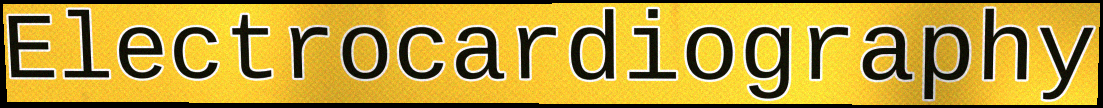
Electrocardiography